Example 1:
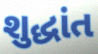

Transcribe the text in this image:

શુદ્ધાંત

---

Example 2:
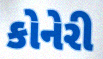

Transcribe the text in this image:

કોનેરી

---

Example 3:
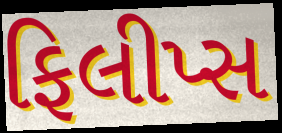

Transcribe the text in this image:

ફિલીપ્સ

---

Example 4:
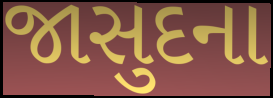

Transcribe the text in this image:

જાસુદના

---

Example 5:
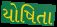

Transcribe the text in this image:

યોષિતા